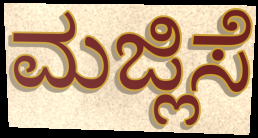
ಮಜ್ಲಿಸೆ